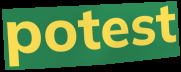
potest